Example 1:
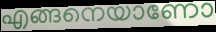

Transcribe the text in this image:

എങ്ങനെയാണോ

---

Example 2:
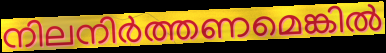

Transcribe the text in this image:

നിലനിർത്തണമെങ്കിൽ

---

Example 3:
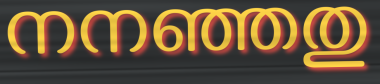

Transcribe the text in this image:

നനഞ്ഞതു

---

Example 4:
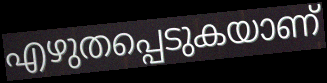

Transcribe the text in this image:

എഴുതപ്പെടുകയാണ്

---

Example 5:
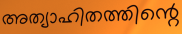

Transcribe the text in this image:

അത്യാഹിതത്തിന്റെ